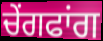
ਚੇਂਗਫਾਂਗ